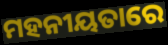
ମହନୀୟତାରେ